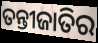
ତନ୍ତୀଜାତିର